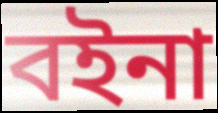
বইনা